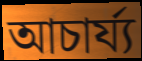
আচাৰ্য্য